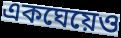
একঘেয়েও